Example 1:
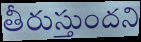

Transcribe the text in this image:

తీరుస్తుందని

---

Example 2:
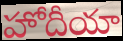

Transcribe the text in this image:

హోదీయా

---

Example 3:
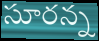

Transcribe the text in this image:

సూరన్న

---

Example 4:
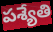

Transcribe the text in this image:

పశ్యేతి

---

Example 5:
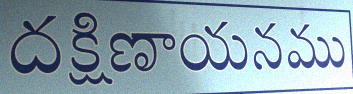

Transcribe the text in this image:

దక్షిణాయనము